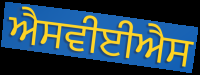
ਐਸਵੀਈਐਸ